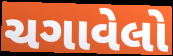
ચગાવેલો